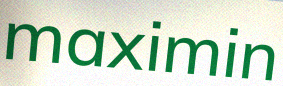
maximin